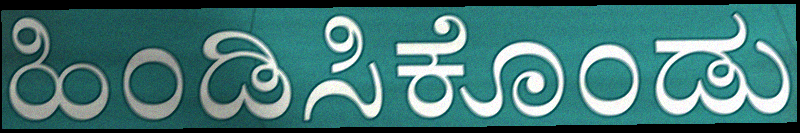
ಹಿಂಡಿಸಿಕೊಂಡು